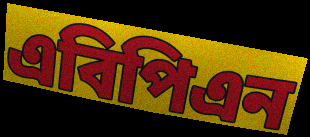
এবিপিএন